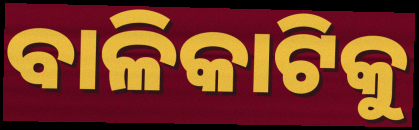
ବାଳିକାଟିକୁ